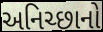
અનિચ્છાનો